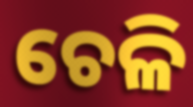
ଚେଳି